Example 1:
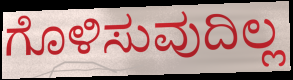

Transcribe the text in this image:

ಗೊಳಿಸುವುದಿಲ್ಲ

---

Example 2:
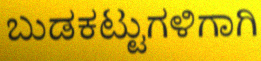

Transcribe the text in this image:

ಬುಡಕಟ್ಟುಗಳಿಗಾಗಿ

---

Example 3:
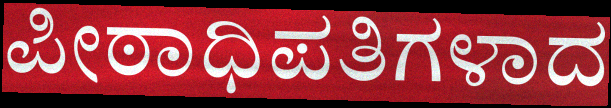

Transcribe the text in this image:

ಪೀಠಾಧಿಪತಿಗಳಾದ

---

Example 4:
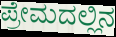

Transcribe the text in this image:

ಪ್ರೇಮದಲ್ಲಿನ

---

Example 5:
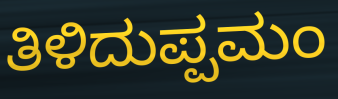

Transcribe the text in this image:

ತಿಳಿದುಪ್ಪಮಂ